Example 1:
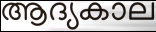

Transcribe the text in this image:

ആദ്യകാല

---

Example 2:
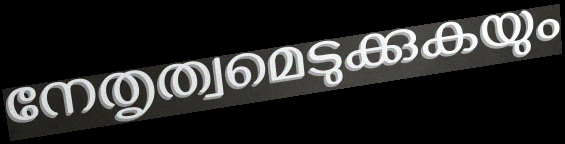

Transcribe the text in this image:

നേതൃത്വമെടുക്കുകയും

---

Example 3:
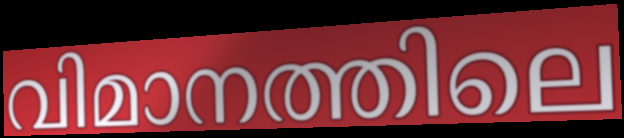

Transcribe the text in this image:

വിമാനത്തിലെ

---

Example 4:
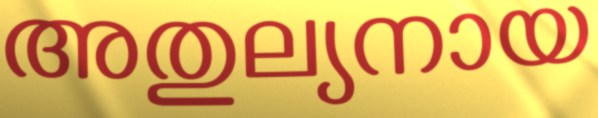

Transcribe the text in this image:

അതുല്യനായ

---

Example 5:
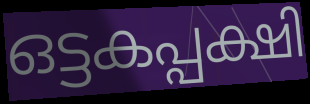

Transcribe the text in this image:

ഒട്ടകപ്പക്ഷി